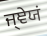
ਜ੍ਞੇਯਂ